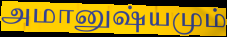
அமானுஷ்யமும்